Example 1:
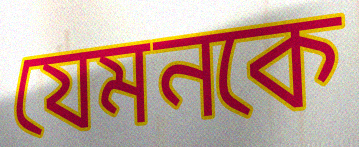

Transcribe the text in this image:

যেমনকে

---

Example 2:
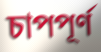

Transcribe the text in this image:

চাপপূর্ণ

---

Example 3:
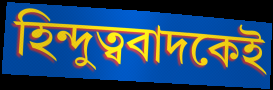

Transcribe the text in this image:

হিন্দুত্ববাদকেই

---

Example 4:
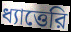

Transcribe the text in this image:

ধ্যাত্তেরি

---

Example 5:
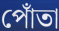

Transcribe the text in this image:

পোঁতা